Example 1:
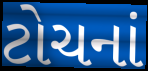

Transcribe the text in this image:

ટોચનાં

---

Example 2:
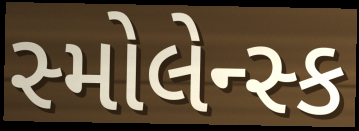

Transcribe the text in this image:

સ્મોલેન્સ્ક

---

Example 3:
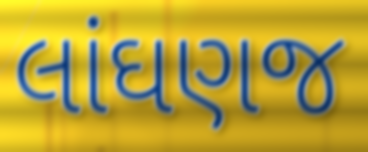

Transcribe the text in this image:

લાંઘણજ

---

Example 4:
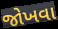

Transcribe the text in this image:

જોખવા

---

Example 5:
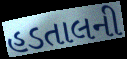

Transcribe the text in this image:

હડતાલની